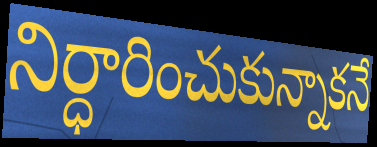
నిర్ధారించుకున్నాకనే